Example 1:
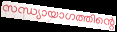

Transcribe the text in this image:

സന്ധ്യായാഗത്തിന്റെ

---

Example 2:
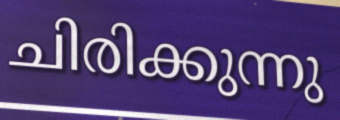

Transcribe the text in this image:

ചിരിക്കുന്നു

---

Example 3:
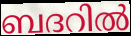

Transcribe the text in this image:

ബദറിൽ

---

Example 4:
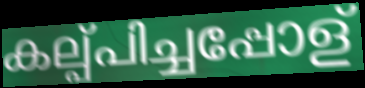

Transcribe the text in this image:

കല്പ്പിച്ചപ്പോള്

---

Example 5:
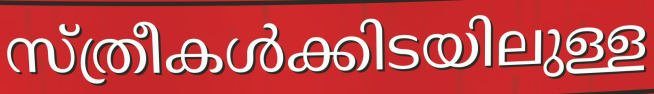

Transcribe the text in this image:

സ്ത്രീകൾക്കിടയിലുള്ള